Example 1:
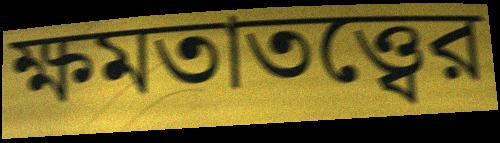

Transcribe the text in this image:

ক্ষমতাতত্ত্বের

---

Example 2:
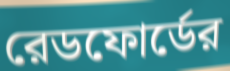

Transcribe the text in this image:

রেডফোর্ডের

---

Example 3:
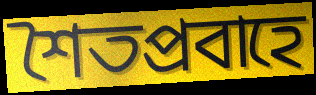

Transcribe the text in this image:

শৈতপ্রবাহে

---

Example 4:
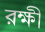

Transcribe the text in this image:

রক্ষী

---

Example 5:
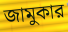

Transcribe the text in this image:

জামুকার